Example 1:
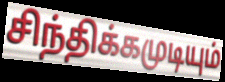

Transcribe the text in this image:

சிந்திக்கமுடியும்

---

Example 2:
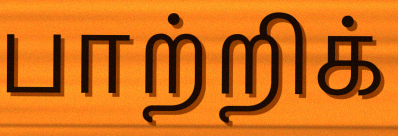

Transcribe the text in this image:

பாற்றிக்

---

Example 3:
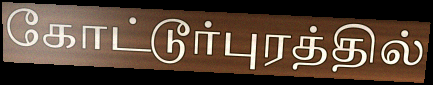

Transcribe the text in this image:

கோட்டூர்புரத்தில்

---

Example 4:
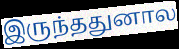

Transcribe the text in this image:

இருந்ததுனால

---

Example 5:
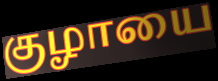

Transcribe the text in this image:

குழாயை